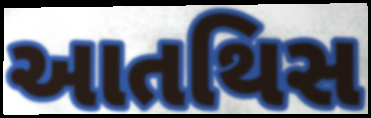
આતથિસ